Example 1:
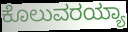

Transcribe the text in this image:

ಕೊಲುವರಯ್ಯಾ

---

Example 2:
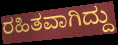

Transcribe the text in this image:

ರಹಿತವಾಗಿದ್ದು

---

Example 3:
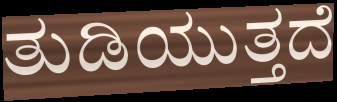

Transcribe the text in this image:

ತುಡಿಯುತ್ತದೆ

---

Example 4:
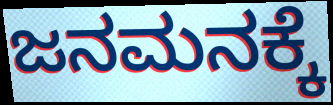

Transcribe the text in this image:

ಜನಮನಕ್ಕೆ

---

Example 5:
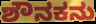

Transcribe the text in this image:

ಶೌನಕನು